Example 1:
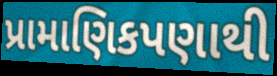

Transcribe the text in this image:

પ્રામાણિકપણાથી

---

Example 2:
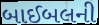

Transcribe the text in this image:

બાઈબલની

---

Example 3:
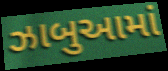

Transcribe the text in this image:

ઝાબુઆમાં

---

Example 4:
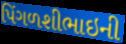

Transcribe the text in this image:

પિંગળશીભાઇની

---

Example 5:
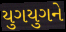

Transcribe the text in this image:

યુગયુગને